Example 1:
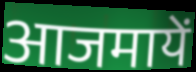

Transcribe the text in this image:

आजमायें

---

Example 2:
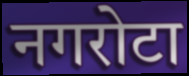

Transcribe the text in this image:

नगरोटा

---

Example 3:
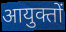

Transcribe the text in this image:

आयुक्तों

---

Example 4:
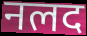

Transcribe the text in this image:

नलद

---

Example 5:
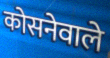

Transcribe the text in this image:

कोसनेवाले